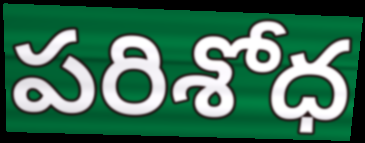
పరిశోధ